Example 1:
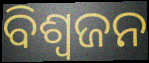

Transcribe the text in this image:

ବିଶ୍ଵଜନ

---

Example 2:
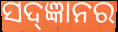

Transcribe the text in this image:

ସଦ୍‌ଜ୍ଞାନର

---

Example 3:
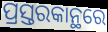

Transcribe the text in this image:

ପ୍ରସ୍ତରକାନ୍ଥରେ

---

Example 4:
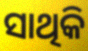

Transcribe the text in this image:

ସାଥିକି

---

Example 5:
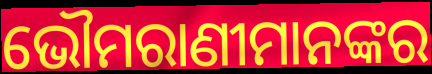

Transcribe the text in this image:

ଭୌମରାଣୀମାନଙ୍କର